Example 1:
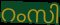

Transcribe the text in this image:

റംസി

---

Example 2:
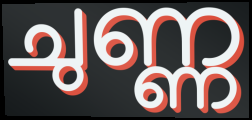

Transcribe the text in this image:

ചുണ്ണ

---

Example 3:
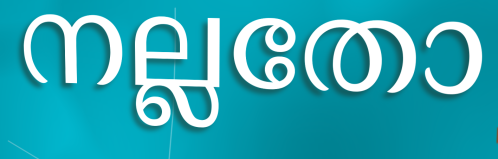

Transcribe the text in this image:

നല്ലതോ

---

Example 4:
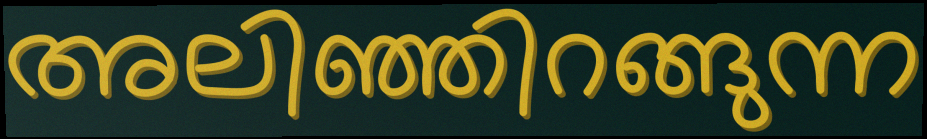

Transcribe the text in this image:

അലിഞ്ഞിറങ്ങുന്ന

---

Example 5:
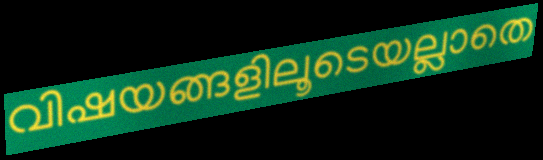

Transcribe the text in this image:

വിഷയങ്ങളിലൂടെയല്ലാതെ